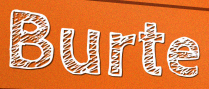
Burte